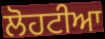
ਲੋਹਟੀਆ